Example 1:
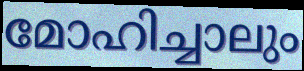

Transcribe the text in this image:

മോഹിച്ചാലും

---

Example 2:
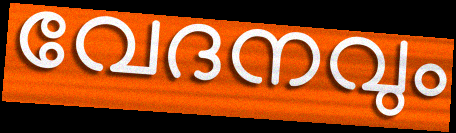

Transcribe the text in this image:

വേദനവും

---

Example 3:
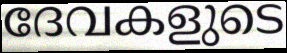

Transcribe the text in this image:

ദേവകളുടെ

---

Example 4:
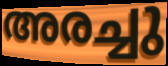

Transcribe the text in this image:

അരച്ചു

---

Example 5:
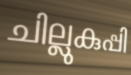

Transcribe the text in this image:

ചില്ലുകുപ്പി